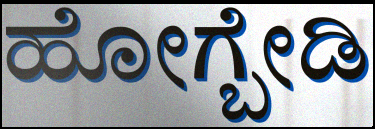
ಹೋಗ್ಬೇಡಿ